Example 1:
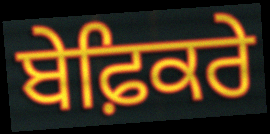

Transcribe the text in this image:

ਬੇਫ਼ਿਕਰੇ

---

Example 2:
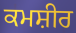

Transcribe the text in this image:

ਕਮਸ਼ੀਰ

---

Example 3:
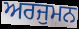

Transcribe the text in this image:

ਅਰਜੁਮਨ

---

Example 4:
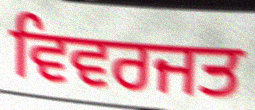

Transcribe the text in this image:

ਵਿਵਰਜਤ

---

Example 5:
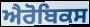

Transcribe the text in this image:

ਐਰੋਬਿਕਸ